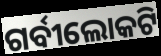
ଗର୍ବୀଲୋକଟି